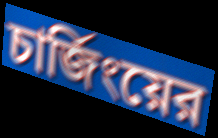
চার্জিংয়ের